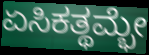
ಏಸಿಕತ್ಥಮ್ಭೇ